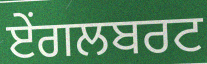
ਏਂਗਲਬਰਟ